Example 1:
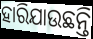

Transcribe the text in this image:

ହାରିଯାଉଛନ୍ତି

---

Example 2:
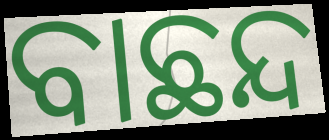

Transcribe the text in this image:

ବାଛନ୍ଦ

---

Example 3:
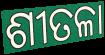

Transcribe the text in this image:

ଶୀତଳା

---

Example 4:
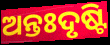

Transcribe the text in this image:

ଅନ୍ତଃଦୃଷ୍ଟି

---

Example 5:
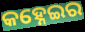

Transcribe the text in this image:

କହ୍ନେଇର